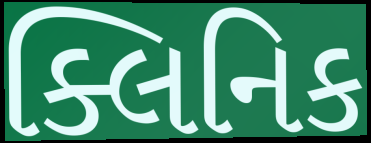
ક્લિનિક